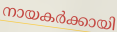
നായകർക്കായി